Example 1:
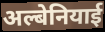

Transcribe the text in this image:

अल्बेनियाई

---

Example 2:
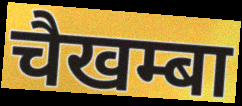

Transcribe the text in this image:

चैखम्बा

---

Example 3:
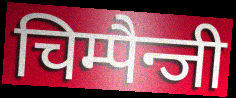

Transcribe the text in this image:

चिम्पैन्जी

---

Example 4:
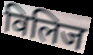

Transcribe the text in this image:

विलिज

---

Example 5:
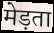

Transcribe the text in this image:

मेड़ता